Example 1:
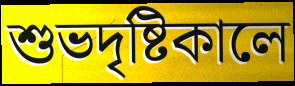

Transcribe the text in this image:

শুভদৃষ্টিকালে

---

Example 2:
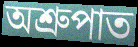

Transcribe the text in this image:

অশ্রুপাত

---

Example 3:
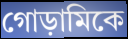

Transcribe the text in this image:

গোড়ামিকে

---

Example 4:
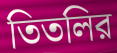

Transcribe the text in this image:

তিতলির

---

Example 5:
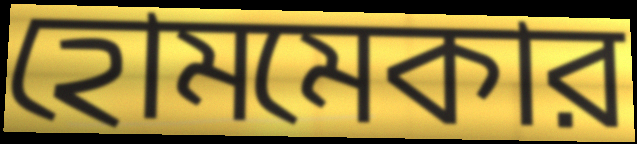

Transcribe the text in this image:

হোমমেকার